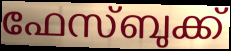
ഫേസ്ബുക്ക്